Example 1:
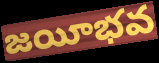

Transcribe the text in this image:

జయీభవ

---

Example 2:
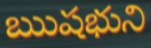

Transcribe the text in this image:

ఋషభుని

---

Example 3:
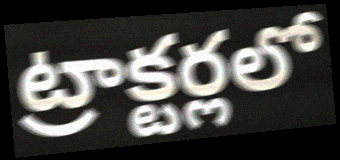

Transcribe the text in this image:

ట్రాక్టర్లలో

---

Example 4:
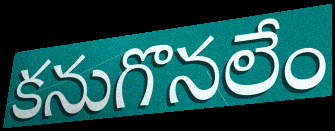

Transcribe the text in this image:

కనుగొనలేం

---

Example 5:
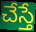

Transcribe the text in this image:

చేస్తే